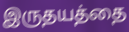
இருதயத்தை